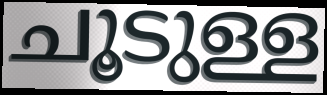
ചൂടുള്ള